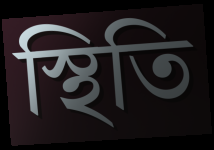
স্থিতি